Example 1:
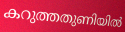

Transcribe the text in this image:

കറുത്തതുണിയിൽ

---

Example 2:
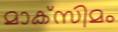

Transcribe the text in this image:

മാക്‌സിമം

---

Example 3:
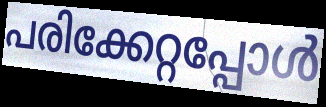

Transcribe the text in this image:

പരിക്കേറ്റപ്പോൾ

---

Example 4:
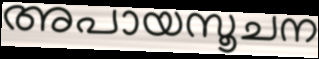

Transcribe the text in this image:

അപായസൂചന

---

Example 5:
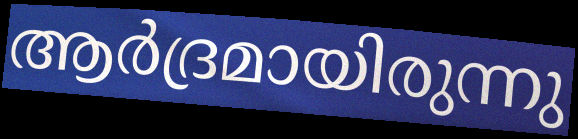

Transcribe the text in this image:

ആർദ്രമായിരുന്നു